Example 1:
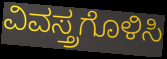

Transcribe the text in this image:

ವಿವಸ್ತ್ರಗೊಳಿಸಿ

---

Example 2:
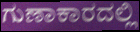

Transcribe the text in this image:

ಗುಣಾಕಾರದಲ್ಲಿ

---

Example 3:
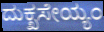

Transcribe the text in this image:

ದುಕ್ಖಸೇಯ್ಯಂ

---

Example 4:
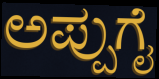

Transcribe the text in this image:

ಅಪ್ಪುಗೈ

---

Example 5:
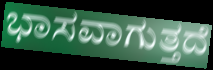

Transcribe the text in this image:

ಭಾಸವಾಗುತ್ತದೆ